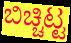
ಬಿಚ್ಚಿಟ್ಟ